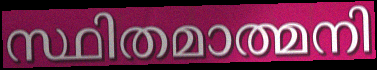
സ്ഥിതമാത്മനി